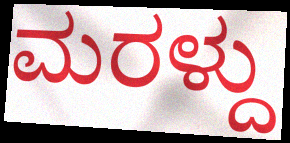
ಮರಳ್ದು